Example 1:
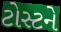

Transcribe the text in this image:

ટોસ્ટને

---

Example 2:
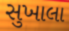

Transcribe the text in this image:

સુખાલા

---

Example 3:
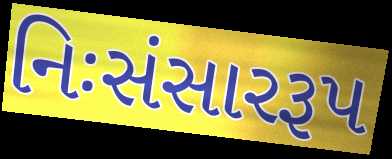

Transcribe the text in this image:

નિઃસંસારરૂપ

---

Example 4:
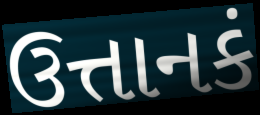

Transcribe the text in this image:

ઉત્તાનકં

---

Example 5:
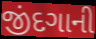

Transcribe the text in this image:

જીંદગાની